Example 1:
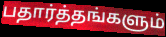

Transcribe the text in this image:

பதார்த்தங்களும்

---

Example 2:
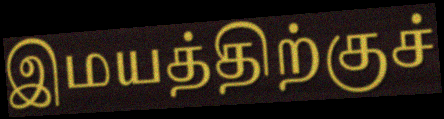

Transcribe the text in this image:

இமயத்திற்குச்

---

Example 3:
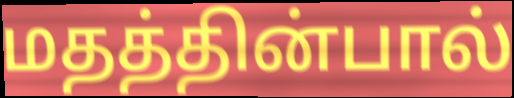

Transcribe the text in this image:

மதத்தின்பால்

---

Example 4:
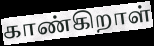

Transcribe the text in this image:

காண்கிறாள்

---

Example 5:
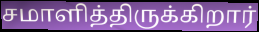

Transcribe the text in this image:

சமாளித்திருக்கிறார்